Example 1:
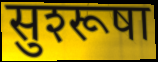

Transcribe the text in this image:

सुश्रूषा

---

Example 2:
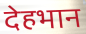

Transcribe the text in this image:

देहभान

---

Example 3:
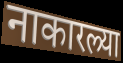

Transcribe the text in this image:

नाकारल्या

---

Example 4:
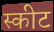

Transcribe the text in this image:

स्कीट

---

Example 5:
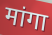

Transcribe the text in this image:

मांगा